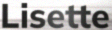
Lisette